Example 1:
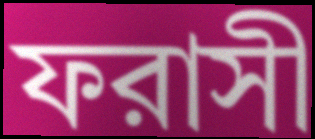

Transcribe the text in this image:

ফরাসী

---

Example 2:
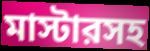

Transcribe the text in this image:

মাস্টারসহ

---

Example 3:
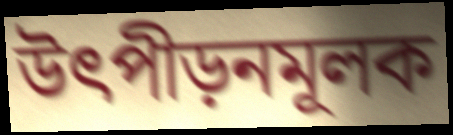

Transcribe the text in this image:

উৎপীড়নমূলক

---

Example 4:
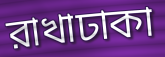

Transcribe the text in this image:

রাখাঢাকা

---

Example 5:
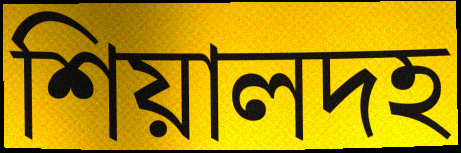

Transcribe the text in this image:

শিয়ালদহ